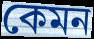
কেমন